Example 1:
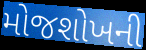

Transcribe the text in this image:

મોજશોખની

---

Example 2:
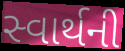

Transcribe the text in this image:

સ્વાર્થની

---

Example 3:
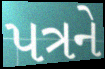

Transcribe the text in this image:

પત્રને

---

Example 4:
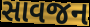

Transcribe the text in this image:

સાવજન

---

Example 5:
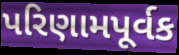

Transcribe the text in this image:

પરિણામપૂર્વક